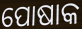
ପୋଷାକ